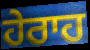
ਹੇਰਾਹ